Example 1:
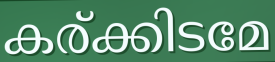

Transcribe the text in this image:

കര്ക്കിടമേ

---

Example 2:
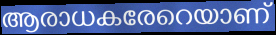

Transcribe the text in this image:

ആരാധകരേറെയാണ്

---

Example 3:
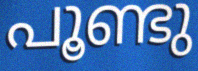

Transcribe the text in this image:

പൂണ്ടു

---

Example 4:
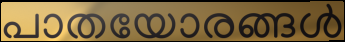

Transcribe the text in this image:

പാതയോരങ്ങൾ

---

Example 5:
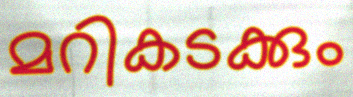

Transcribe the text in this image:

മറികടക്കും